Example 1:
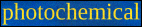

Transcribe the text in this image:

photochemical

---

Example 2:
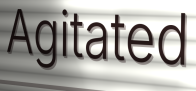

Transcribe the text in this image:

Agitated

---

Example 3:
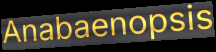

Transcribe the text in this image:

Anabaenopsis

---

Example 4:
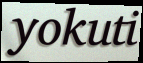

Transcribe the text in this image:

yokuti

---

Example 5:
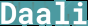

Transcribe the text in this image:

Daali